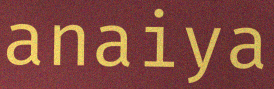
anaiya